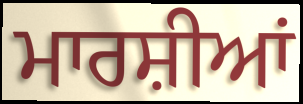
ਮਾਰਸ਼ੀਆਂ